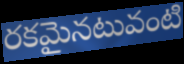
రకమైనటువంటి